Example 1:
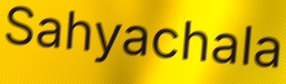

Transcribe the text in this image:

Sahyachala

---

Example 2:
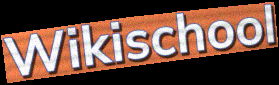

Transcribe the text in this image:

Wikischool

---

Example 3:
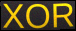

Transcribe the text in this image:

XOR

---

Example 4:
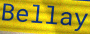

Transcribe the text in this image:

Bellay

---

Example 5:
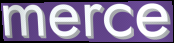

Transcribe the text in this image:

merce